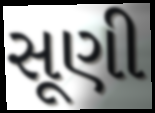
સૂણી